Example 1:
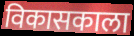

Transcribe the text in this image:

विकासकाला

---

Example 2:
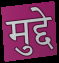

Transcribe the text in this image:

मुद्दे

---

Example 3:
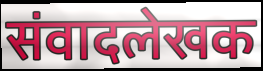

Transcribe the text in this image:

संवादलेखक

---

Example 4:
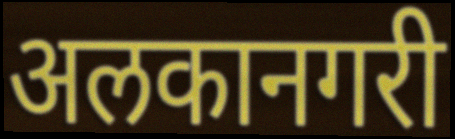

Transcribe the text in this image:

अलकानगरी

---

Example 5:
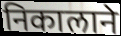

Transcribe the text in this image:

निकालाने